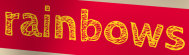
rainbows